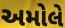
અમોલે